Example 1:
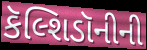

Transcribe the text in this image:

કૅલ્શિડૉનીની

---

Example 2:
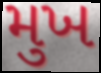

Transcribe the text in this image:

મુખ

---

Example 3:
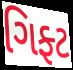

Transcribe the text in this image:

ગિફ્ટ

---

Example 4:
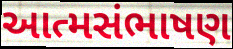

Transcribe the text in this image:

આત્મસંભાષણ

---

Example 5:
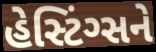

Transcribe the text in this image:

હેસ્ટિંગ્સને